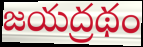
జయద్రథం